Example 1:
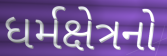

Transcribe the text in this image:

ધર્મક્ષેત્રનો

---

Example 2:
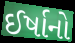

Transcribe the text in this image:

ઈર્ષાનો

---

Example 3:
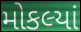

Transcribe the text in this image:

મોકલ્યાં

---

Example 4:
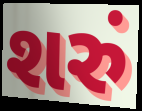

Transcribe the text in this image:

શરું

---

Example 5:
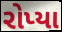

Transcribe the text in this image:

રોપ્યા